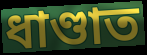
ধাণ্ডাত